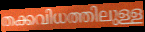
തക്കവിധത്തിലുള്ള